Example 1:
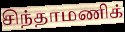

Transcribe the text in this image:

சிந்தாமணிக்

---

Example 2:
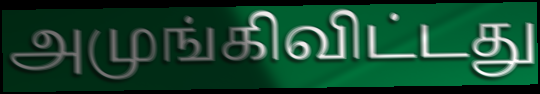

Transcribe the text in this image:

அமுங்கிவிட்டது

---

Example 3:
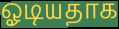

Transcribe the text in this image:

ஓடியதாக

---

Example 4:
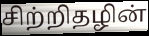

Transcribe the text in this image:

சிற்றிதழின்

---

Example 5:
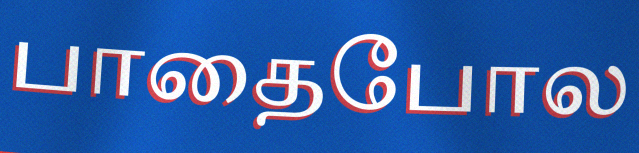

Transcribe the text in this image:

பாதைபோல